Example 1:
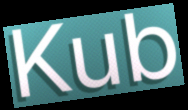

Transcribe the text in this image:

Kub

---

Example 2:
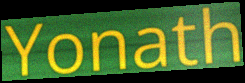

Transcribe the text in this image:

Yonath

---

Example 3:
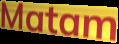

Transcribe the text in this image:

Matam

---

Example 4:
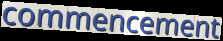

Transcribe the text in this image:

commencement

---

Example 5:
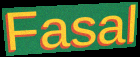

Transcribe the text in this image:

Fasal